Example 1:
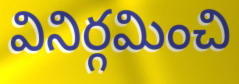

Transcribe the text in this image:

వినిర్గమించి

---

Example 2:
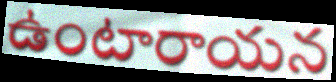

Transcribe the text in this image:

ఉంటారాయన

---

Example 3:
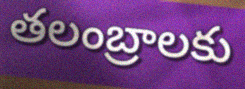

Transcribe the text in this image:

తలంబ్రాలకు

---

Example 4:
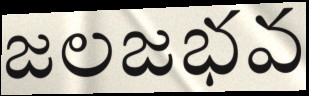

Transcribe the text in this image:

జలజభవ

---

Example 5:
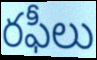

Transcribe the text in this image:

రఫీలు